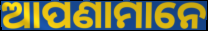
ଆପଣାମାନେ